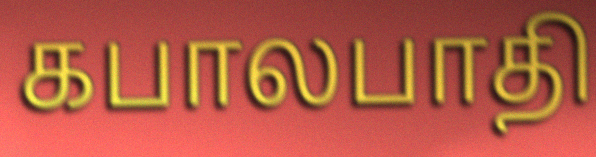
கபாலபாதி